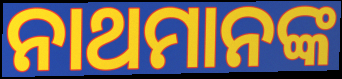
ନାଥମାନଙ୍କ